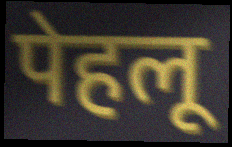
पेहलू